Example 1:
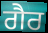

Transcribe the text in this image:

ਗੈਰ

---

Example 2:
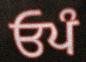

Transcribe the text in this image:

ਓਪੰ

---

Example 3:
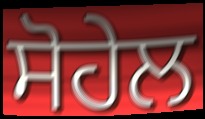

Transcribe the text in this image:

ਸੋਹੇਲ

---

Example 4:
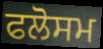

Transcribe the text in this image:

ਫਲੋਸਮ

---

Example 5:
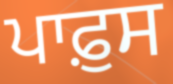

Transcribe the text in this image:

ਪਾਫ਼ੁਸ